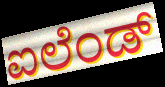
ಐಲೆಂಡ್